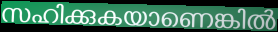
സഹിക്കുകയാണെങ്കിൽ